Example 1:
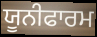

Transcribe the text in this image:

ਯੂਨੀਫਾਰਮ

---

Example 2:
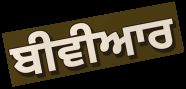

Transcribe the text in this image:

ਬੀਵੀਆਰ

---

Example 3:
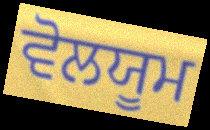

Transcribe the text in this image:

ਵੋਲਯੂਮ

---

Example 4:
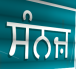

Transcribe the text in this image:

ਸੰਨਜ਼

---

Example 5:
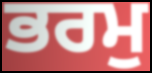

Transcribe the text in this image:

ਭਰਮੁ